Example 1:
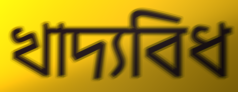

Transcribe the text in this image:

খাদ্যবিধ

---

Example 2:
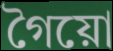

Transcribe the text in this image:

গৈয়ো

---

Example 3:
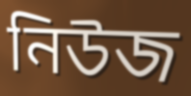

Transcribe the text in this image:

নিউজ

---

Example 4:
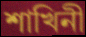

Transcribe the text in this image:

শাখিনী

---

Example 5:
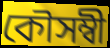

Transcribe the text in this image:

কৌসম্বী